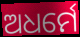
ଅଧର୍ମେ